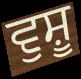
ਵੁਸ਼ੂ